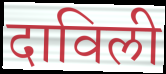
दाविली